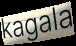
kagala